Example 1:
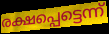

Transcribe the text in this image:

രക്ഷപ്പെട്ടെന്ന്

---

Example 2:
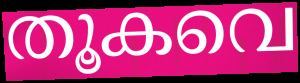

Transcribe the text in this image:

തൂകവെ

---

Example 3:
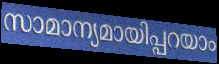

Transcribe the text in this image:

സാമാന്യമായിപ്പറയാം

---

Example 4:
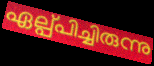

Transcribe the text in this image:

ഏല്പ്പിച്ചിരുന്നു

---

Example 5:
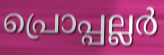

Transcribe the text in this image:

പ്രൊപ്പല്ലർ